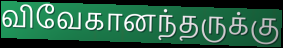
விவேகானந்தருக்கு